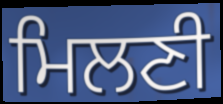
ਮਿਲਣੀ